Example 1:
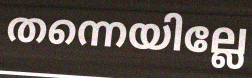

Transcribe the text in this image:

തന്നെയില്ലേ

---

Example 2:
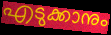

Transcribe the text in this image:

എടുക്കാനും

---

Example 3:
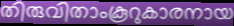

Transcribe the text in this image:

തിരുവിതാംകൂറുകാരനായ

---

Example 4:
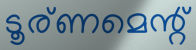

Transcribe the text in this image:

ടൂര്ണമെന്റ്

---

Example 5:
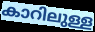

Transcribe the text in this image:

കാറിലുള്ള